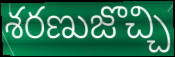
శరణుజొచ్చి